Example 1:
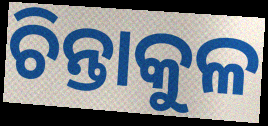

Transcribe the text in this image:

ଚିନ୍ତାକୁଳ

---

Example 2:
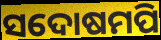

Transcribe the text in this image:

ସଦୋଷମପି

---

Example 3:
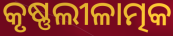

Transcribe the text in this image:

କୃଷ୍ଣଲୀଳାତ୍ମକ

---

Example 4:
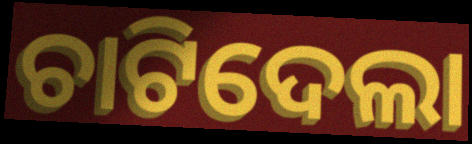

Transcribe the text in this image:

ଚାଟିଦେଲା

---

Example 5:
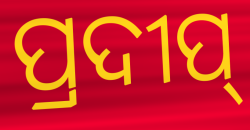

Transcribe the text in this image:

ପ୍ରଦୀପ୍